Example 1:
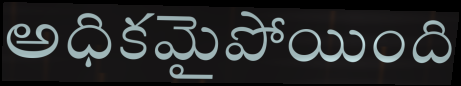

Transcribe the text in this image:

అధికమైపోయింది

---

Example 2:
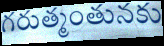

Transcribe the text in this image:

గరుత్మంతునకు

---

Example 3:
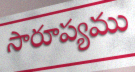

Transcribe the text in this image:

సారూప్యము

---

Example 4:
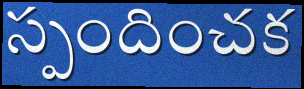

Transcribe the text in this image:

స్పందించక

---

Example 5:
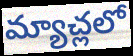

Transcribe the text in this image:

మ్యాచ్లలో